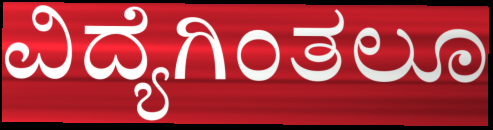
ವಿದ್ಯೆಗಿಂತಲೂ